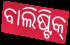
ବାଲିଷ୍ଟିକ୍